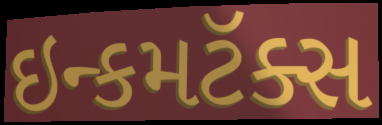
ઇન્કમટૅક્સ